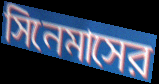
সিনেমাসের